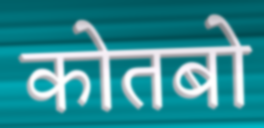
कोतबो